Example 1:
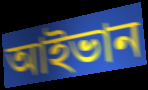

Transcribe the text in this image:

আইভান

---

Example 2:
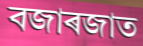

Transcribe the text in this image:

বজাৰজাত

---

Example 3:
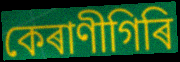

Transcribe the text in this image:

কেৰাণীগিৰি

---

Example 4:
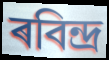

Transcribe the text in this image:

ৰবিন্দ্ৰ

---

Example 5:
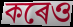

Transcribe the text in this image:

কৰেও